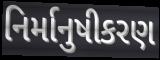
નિર્માનુષીકરણ